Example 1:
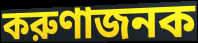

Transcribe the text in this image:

করুণাজনক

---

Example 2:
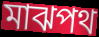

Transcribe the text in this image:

মাঝপথ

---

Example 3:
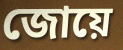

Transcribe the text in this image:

জোয়ে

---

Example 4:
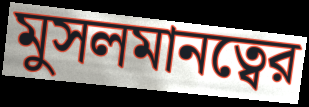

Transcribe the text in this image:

মুসলমানত্বের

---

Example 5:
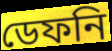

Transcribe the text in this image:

ডেফনি